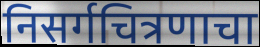
निसर्गचित्रणाचा